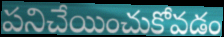
పనిచేయించుకోవడం